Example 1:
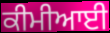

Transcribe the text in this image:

ਕੀਮੀਆਈ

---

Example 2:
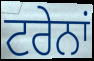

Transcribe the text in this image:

ਟਰੇਨਾਂ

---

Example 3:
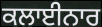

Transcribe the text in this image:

ਕਲਾਈਨਾਰ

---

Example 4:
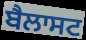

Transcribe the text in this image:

ਬੈਲਾਸਟ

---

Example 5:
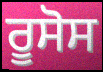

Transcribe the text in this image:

ਰੂਸੋਸ